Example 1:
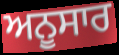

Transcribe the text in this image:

ਅਨੂਸਾਰ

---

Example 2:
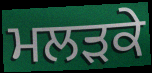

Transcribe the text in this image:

ਮਲੜਕੇ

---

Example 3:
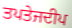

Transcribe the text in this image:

ਤਪਤੇਜਦੀਪ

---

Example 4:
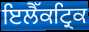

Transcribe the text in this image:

ਇਲੈੱਕਟ੍ਰਿਕ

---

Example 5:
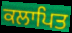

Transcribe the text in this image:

ਕਲਾਪਿਤ